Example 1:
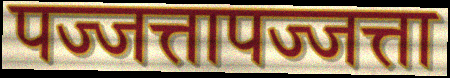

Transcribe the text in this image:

पज्जत्तापज्जत्ता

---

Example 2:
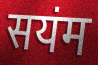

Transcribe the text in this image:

सयंम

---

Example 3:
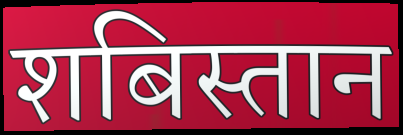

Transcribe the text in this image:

शबिस्तान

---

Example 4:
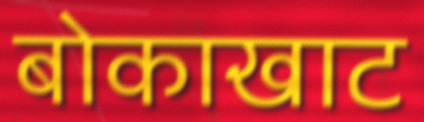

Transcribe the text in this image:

बोकाखाट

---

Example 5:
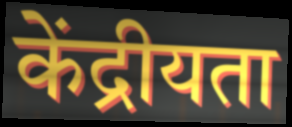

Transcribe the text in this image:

केंद्रीयता